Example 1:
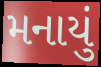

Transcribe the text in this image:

મનાયું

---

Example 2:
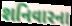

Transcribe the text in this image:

શનિવારના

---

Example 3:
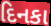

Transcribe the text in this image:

દિનકા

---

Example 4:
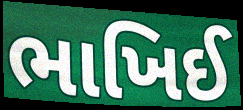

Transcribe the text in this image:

ભાખિઈ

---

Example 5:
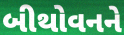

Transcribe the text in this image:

બીથોવનને